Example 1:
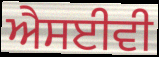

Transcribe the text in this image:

ਐਸਈਵੀ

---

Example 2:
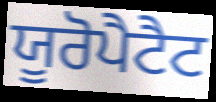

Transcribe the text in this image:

ਯੂਰੋਪੈਟੈਟ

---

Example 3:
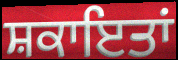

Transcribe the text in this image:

ਸ਼ਕਾਇਤਾਂ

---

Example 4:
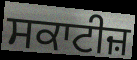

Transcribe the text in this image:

ਸਕਾਟੀਜ਼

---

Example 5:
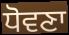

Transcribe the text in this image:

ਧੋਵਣਾ